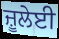
ਜ਼ੂਲੇਈ